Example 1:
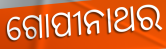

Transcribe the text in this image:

ଗୋପୀନାଥର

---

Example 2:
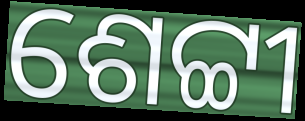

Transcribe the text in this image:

ଶେଟ୍ଟୀ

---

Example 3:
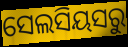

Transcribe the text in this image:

ସେଲସିୟସରୁ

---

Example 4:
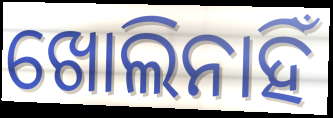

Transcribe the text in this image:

ଖୋଲିନାହିଁ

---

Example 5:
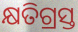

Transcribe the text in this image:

କ୍ଷତିଗ୍ରସ୍ତ